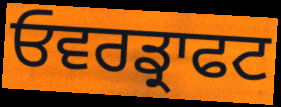
ਓਵਰਡ੍ਰਾਫਟ